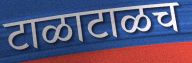
टाळाटाळच